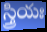
స్త్రియః